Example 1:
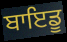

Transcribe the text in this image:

ਬਾਇਡੂ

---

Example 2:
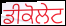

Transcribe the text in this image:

ਡੀਕੋਲੇਟ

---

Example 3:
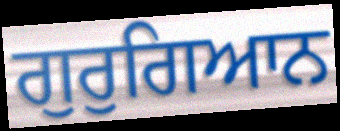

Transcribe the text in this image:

ਗੁਰੁਗਿਆਨ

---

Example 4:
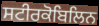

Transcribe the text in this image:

ਸਟੀਰਕੋਬਿਲਿਨ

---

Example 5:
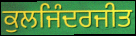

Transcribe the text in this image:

ਕੁਲਜਿੰਦਰਜੀਤ